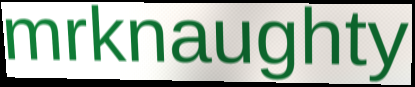
mrknaughty